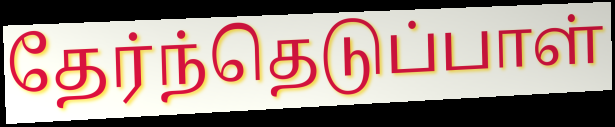
தேர்ந்தெடுப்பாள்